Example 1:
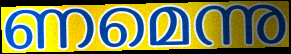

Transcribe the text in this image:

ണമെന്നു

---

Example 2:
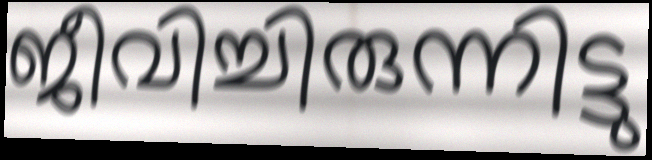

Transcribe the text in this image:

ജീവിച്ചിരുന്നിട്ടു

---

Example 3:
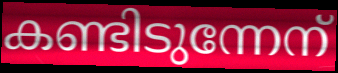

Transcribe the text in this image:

കണ്ടിടുന്നേന്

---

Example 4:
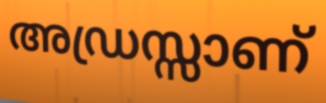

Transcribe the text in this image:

അഡ്രസ്സാണ്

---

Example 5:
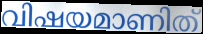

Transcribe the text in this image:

വിഷയമാണിത്